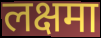
लक्षमा